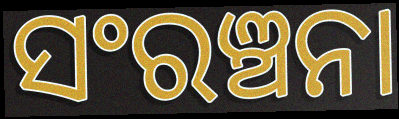
ସଂରଞ୍ଚନା